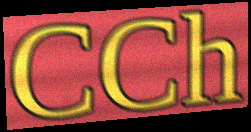
CCh